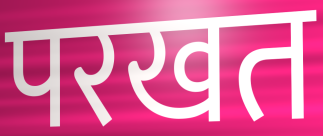
परखत